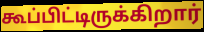
கூப்பிட்டிருக்கிறார்